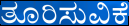
ತೂರಿಸುವಿಕೆ